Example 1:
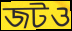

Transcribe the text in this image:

জটও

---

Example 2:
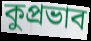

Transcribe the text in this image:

কুপ্রভাব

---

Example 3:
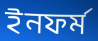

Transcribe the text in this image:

ইনফর্ম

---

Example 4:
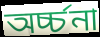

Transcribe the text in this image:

অর্চ্চনা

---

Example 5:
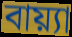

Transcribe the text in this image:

বায়্যা